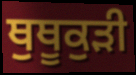
ਥੁਥੂਕੁੜੀ